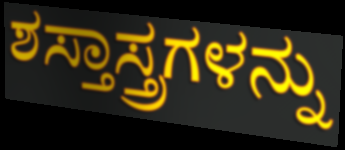
ಶಸ್ತಾಸ್ತ್ರಗಳನ್ನು